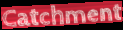
Catchment